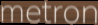
metron